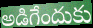
అడిగేందుకు